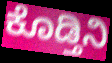
ಕೊಡ್ತಿನಿ